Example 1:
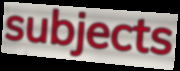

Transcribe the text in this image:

subjects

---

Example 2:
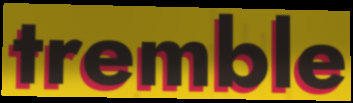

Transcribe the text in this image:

tremble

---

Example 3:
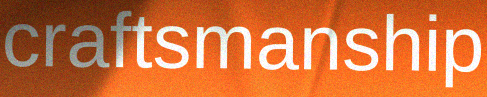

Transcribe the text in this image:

craftsmanship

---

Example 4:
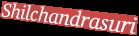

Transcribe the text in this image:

Shilchandrasuri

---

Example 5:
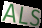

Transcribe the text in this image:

ALS